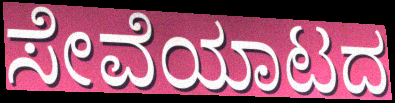
ಸೇವೆಯಾಟದ